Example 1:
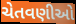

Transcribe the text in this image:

ચેતવણીઓ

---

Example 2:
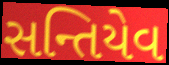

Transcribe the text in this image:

સન્તિયેવ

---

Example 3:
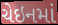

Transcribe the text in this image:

ચેઇનમાં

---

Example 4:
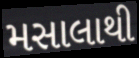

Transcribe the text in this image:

મસાલાથી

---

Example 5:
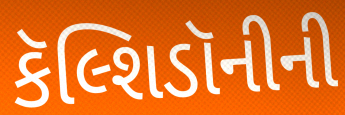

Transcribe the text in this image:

કૅલ્શિડૉનીની